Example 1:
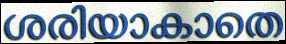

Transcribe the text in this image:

ശരിയാകാതെ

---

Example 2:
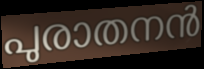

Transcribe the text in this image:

പുരാതനൻ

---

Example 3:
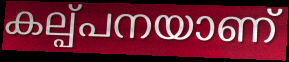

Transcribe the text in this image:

കല്പ്പനയാണ്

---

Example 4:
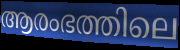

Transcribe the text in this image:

ആരംഭത്തിലെ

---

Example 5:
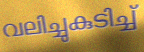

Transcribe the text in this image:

വലിച്ചുകുടിച്ച്